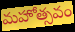
మహోత్సవం